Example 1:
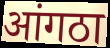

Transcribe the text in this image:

आंगठा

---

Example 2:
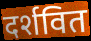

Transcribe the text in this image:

दर्शवित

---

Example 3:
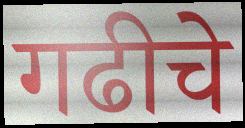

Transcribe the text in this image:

गढीचे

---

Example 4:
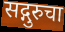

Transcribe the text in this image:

सद्गुरुचा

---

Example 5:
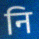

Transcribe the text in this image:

नि